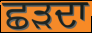
ਛੜਦਾ